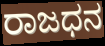
ರಾಜಧನ